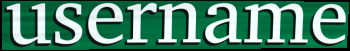
username